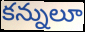
కన్నులూ